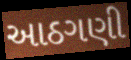
આઠગણી